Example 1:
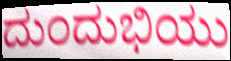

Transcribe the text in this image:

ದುಂದುಭಿಯು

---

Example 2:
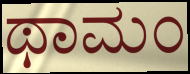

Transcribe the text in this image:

ಥಾಮಂ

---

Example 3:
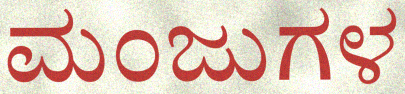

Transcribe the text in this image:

ಮಂಜುಗಳ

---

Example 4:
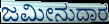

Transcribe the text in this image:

ಜಮೀನುದಾರ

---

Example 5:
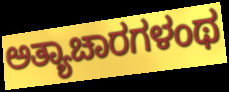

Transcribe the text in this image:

ಅತ್ಯಾಚಾರಗಳಂಥ